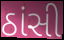
ઠાંસી